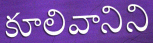
కూలివానిని